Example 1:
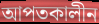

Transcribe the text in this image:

আপতকালীন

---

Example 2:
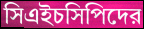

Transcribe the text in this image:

সিএইচসিপিদের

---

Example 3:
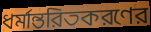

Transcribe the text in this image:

ধর্মান্তরিতকরণের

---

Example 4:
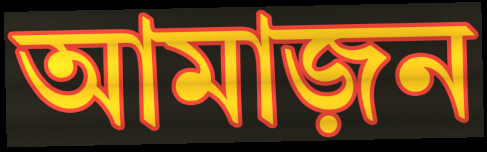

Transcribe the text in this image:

আমাজ়ন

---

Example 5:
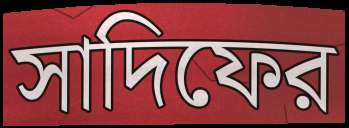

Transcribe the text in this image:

সাদিফের